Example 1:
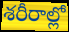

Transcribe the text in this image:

శరీరాల్లో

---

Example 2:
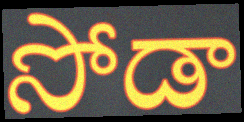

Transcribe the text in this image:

సోడా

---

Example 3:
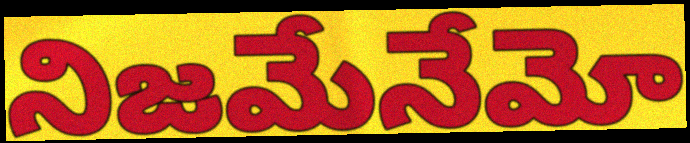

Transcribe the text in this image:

నిజమేనేమో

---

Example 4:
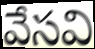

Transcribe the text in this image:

వేసవి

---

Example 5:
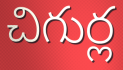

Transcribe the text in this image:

చిగుర్ల